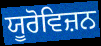
ਯੂਰੋਵਿਜ਼ਨ